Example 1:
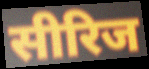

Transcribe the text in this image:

सीरिज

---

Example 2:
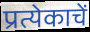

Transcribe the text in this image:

प्रत्येकाचें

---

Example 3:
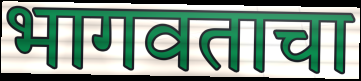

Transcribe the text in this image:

भागवताचा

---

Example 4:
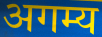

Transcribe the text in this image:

अगम्य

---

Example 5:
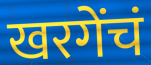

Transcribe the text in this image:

खरगेंचं